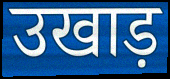
उखाड़